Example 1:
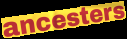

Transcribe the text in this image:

ancesters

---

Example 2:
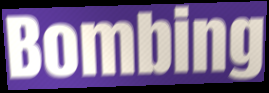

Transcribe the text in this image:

Bombing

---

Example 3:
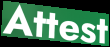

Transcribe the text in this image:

Attest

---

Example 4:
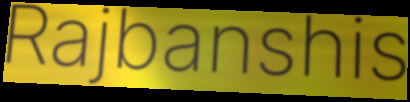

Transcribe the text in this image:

Rajbanshis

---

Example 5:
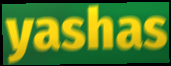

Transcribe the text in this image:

yashas